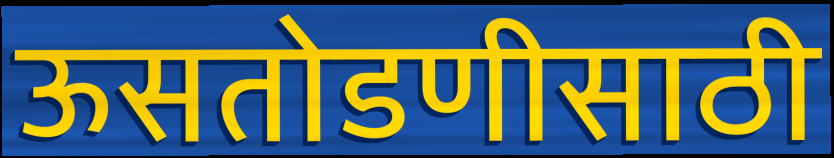
ऊसतोडणीसाठी